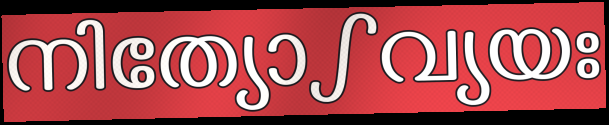
നിത്യോഽവ്യയഃ